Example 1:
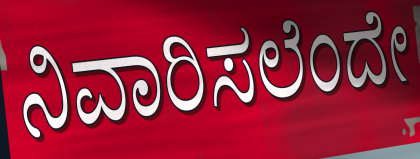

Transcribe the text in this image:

ನಿವಾರಿಸಲೆಂದೇ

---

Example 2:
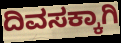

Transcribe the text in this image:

ದಿವಸಕ್ಕಾಗಿ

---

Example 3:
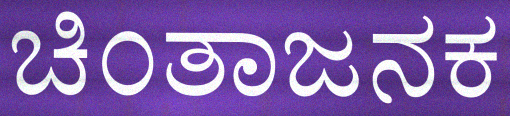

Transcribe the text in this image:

ಚಿಂತಾಜನಕ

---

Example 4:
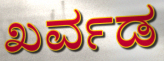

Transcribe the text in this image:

ಖರ್ವಡ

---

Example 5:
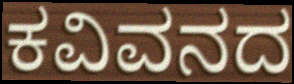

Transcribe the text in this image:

ಕವಿವನದ